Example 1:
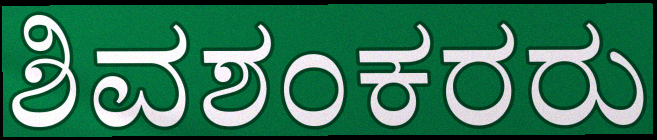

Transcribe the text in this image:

ಶಿವಶಂಕರರು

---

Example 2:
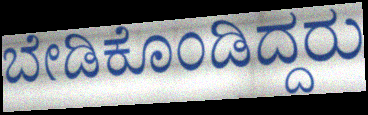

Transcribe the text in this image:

ಬೇಡಿಕೊಂಡಿದ್ದರು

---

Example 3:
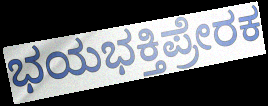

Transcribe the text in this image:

ಭಯಭಕ್ತಿಪ್ರೇರಕ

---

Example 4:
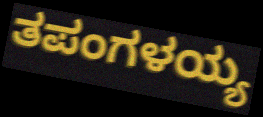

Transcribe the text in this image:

ತಪಂಗಳಯ್ಯ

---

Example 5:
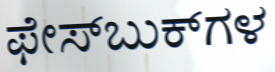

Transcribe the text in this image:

ಫೇಸ್‌ಬುಕ್‌ಗಳ